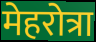
मेहरोत्रा